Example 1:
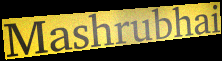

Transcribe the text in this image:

Mashrubhai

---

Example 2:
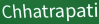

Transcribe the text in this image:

Chhatrapati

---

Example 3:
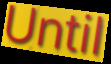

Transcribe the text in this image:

Until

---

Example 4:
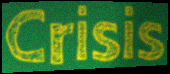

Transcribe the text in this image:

Crisis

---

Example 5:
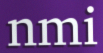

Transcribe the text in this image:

nmi